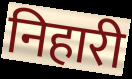
निहारी